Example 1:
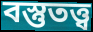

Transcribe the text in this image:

বস্তুতত্ত্ব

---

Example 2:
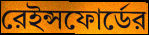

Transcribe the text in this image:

রেইন্সফোর্ডের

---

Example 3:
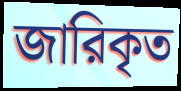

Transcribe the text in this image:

জারিকৃত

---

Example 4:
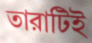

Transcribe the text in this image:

তারাটিই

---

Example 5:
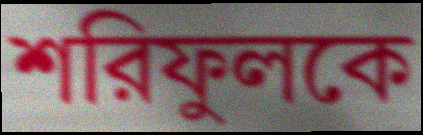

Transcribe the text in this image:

শরিফুলকে